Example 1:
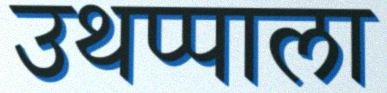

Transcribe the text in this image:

उथप्पाला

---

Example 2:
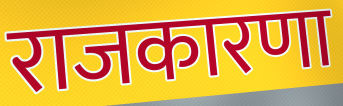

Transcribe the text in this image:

राजकारणा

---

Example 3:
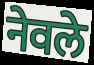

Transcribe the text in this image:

नेवले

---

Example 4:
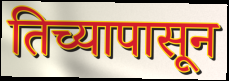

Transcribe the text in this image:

तिच्यापासून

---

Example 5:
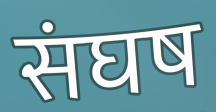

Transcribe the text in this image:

संघष